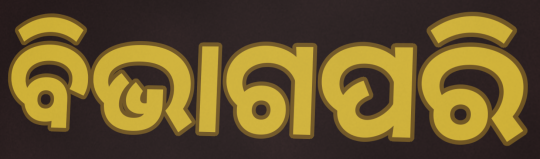
ବିଭାଗପରି